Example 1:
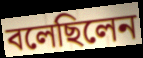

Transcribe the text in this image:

বলেছিলেন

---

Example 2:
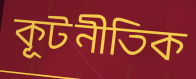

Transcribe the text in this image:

কূটনীতিক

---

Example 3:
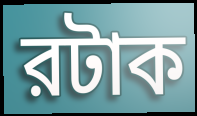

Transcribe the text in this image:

রটাক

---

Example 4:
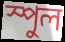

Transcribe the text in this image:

স্পুল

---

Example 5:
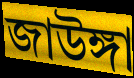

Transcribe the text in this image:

জাউঙ্গা